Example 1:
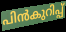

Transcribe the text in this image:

പിൻകുറിപ്പ്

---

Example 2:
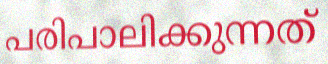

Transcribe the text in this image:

പരിപാലിക്കുന്നത്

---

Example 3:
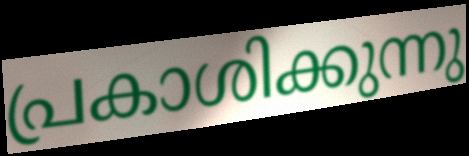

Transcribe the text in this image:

പ്രകാശിക്കുന്നു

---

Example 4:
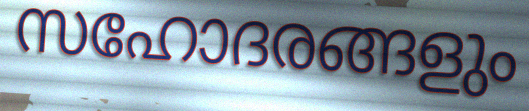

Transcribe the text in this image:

സഹോദരങ്ങളും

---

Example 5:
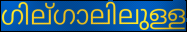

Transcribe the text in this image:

ഗില്ഗാലിലുള്ള